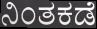
ನಿಂತಕಡೆ